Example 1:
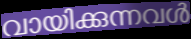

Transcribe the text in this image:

വായിക്കുന്നവൾ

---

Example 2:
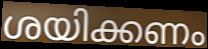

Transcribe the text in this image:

ശയിക്കണം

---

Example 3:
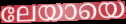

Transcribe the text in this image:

ലേയായെ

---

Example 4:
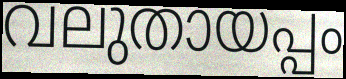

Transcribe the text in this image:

വലുതായപ്പം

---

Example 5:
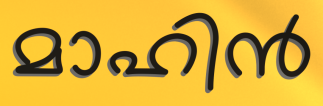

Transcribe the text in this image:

മാഹിൻ